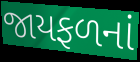
જાયફળનાં